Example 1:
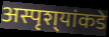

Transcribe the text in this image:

अस्पृश्यांकडे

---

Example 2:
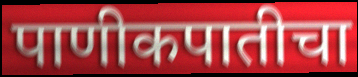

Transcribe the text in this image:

पाणीकपातीचा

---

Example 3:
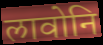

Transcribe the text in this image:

लावोनि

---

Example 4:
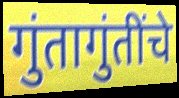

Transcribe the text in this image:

गुंतागुंतींचे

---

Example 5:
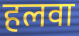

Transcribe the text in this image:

हलवा